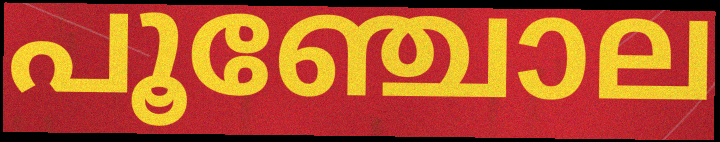
പൂഞ്ചോല